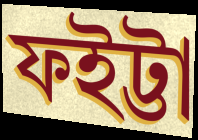
ফইট্টা